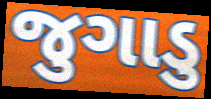
જુગાડુ